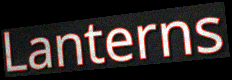
Lanterns